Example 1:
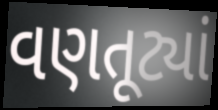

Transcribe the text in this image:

વણતૂટ્યાં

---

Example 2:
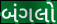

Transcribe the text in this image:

બંગલો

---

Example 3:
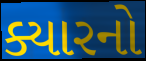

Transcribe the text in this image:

ક્યારનો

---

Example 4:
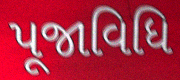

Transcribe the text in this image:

પૂજાવિધિ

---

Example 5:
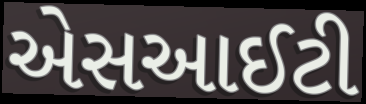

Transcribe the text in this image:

એસઆઈટી